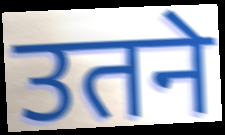
उतने